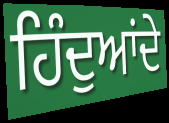
ਹਿੰਦੁਆਂਦੇ